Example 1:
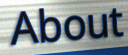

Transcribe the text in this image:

About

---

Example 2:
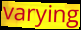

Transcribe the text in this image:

varying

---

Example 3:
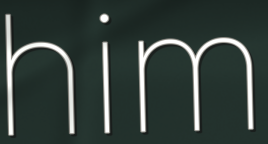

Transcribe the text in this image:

him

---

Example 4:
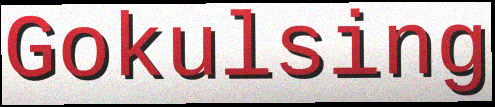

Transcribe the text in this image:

Gokulsing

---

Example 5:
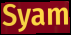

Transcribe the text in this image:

Syam